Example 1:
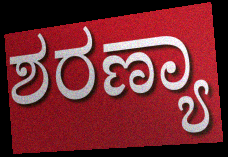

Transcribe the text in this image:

ಶರಣ್ಯಾ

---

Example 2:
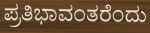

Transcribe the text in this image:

ಪ್ರತಿಭಾವಂತರೆಂದು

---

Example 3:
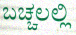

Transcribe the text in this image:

ಬಚ್ಚಲಲ್ಲಿ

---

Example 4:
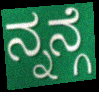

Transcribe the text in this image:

ನ್ನನ್ಗೆ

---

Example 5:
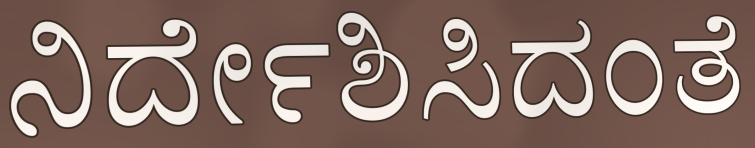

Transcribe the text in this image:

ನಿರ್ದೇಶಿಸಿದಂತೆ